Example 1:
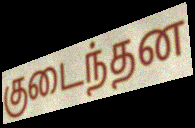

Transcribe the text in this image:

குடைந்தன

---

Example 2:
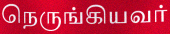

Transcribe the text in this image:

நெருங்கியவர்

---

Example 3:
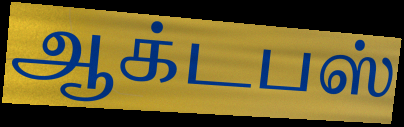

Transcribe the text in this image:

ஆக்டபஸ்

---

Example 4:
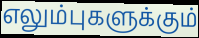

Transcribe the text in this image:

எலும்புகளுக்கும்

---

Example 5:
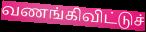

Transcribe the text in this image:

வணங்கிவிட்டுச்